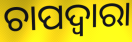
ଚାପଦ୍ବାରା